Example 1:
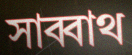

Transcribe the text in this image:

সাব্বাথ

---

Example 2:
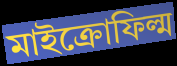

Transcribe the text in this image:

মাইক্রোফিল্ম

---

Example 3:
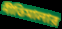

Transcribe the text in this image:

নীতিমালার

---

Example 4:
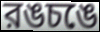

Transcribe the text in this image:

রঙচঙে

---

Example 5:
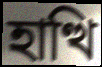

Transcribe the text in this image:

হাত্থি